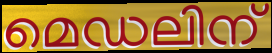
മെഡലിന്